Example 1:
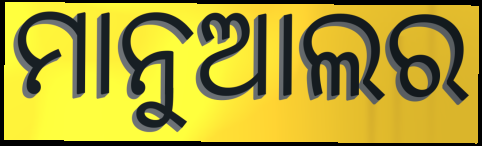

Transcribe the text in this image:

ମାନୁଆଲର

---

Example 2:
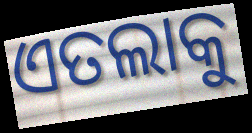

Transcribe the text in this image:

ଏତଲାକୁ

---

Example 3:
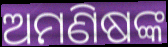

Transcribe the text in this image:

ଅମଣିଷଙ୍କ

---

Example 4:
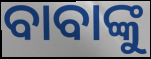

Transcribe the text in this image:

ବାବାଙ୍କୁ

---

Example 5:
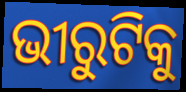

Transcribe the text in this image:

ଭୀରୁଟିକୁ